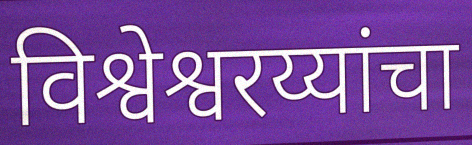
विश्वेश्वरय्यांचा